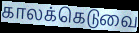
காலக்கெடுவை